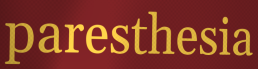
paresthesia